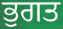
ਭੁਗਤ